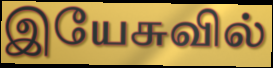
இயேசுவில்